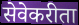
सेवेकरीता